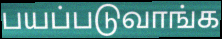
பயப்படுவாங்க